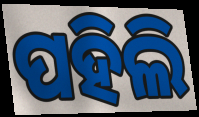
ପହିଲି